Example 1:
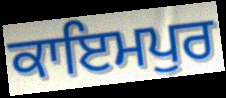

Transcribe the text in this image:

ਕਾਇਮਪੁਰ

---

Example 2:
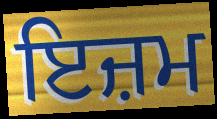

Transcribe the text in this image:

ਇਜ਼ਮ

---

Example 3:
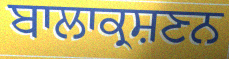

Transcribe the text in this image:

ਬਾਲਾਕ੍ਰਸ਼ਣਨ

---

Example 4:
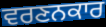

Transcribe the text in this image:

ਵਰਣਨਕਾਰ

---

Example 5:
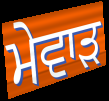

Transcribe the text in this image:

ਮੇਵਾੜ